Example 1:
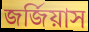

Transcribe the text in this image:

জর্জিয়াস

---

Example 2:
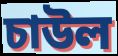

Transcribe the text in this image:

চাউল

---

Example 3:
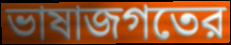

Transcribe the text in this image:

ভাষাজগতের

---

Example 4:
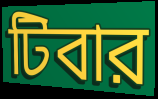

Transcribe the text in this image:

টিবার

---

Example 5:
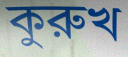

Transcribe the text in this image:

কুরুখ